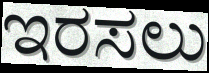
ಇರಸಲು